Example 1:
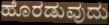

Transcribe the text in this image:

ಹೊರಡುವುದು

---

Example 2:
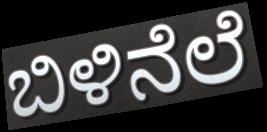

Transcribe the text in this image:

ಬಿಳಿನೆಲೆ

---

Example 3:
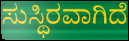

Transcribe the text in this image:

ಸುಸ್ಥಿರವಾಗಿದೆ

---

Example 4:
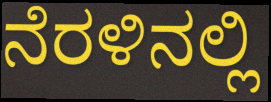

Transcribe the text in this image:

ನೆರಳಿನಲ್ಲಿ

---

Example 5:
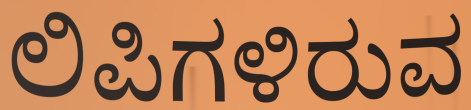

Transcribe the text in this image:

ಲಿಪಿಗಳಿರುವ